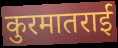
कुरमातराई